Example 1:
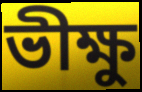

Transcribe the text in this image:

ভীক্ষু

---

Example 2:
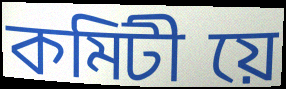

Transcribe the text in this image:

কমিটীয়ে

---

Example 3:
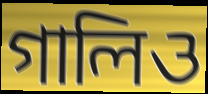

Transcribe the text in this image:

গালিও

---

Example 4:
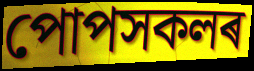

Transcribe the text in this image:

পোপসকলৰ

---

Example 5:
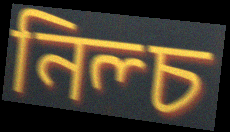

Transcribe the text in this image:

নিল্চ